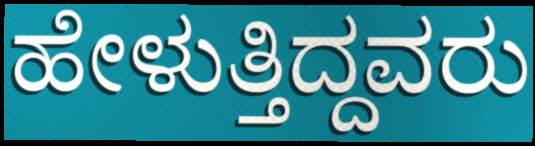
ಹೇಳುತ್ತಿದ್ದವರು